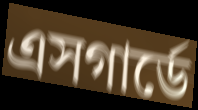
এসগার্ডে